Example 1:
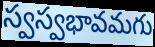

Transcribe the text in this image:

స్వస్వభావమగు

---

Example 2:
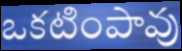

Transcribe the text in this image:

ఒకటింపావు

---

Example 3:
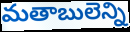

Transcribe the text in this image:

మతాబులెన్ని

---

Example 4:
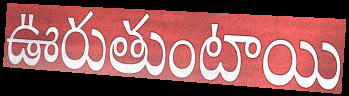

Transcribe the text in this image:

ఊరుతుంటాయి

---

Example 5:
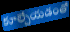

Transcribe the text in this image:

కూల్చేయడంతో